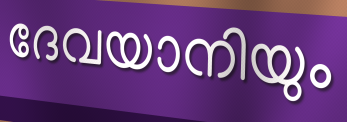
ദേവയാനിയും